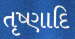
તૃષ્ણાદિ